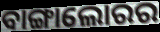
ବାଙ୍ଗାଲୋରର